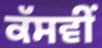
ਕੱਸਵੀਂ